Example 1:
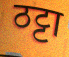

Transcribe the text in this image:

ठट्टा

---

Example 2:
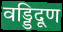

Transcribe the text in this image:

वड्डिदूण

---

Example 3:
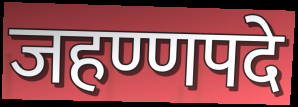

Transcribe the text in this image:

जहण्णपदे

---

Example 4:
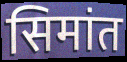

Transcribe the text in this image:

सिमांत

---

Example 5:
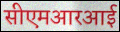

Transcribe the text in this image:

सीएमआरआई